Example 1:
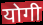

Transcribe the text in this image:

योगी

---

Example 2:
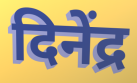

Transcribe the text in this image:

दिनेंद्र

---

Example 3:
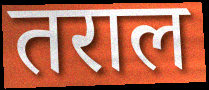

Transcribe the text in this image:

तराल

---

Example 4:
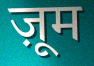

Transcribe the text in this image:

ज़ूम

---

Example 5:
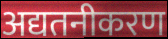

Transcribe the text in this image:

अद्यतनीकरण